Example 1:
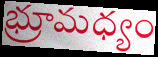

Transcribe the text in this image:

భ్రూమధ్యం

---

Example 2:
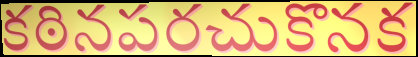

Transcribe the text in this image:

కఠినపరచుకొనక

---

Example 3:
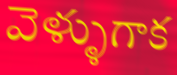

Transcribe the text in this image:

వెళ్ళుగాక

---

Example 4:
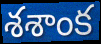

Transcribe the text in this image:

శశాంక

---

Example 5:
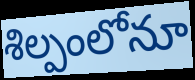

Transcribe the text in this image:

శిల్పంలోనూ